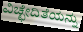
ವಿಚ್ಛೇದಿತೆಯನ್ನು